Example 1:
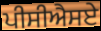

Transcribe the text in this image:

ਪੀਸੀਐਸਏ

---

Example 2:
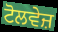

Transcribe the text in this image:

ਟੋਲਵੇਜ਼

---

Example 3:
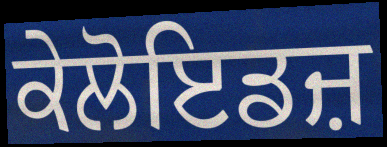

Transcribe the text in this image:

ਕੇਲੋਇਡਜ਼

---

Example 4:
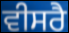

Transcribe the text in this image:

ਵੀਸਰੈ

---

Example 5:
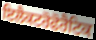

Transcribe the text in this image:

ਇਲੈਕਟਰੋਫੋਰੈਟਿਕ